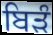
ਬਿੜੰ